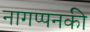
नागप्पनकी